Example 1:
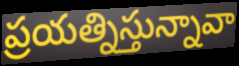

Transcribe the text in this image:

ప్రయత్నిస్తున్నావా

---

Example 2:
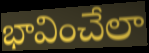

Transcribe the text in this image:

భావించేలా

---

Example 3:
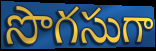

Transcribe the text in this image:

సొగసుగా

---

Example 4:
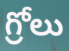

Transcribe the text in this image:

గ్రోలు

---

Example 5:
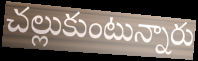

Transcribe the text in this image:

చల్లుకుంటున్నారు